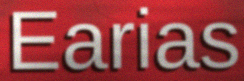
Earias